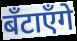
बँटाएँगे